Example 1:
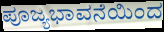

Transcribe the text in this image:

ಪೂಜ್ಯಭಾವನೆಯಿಂದ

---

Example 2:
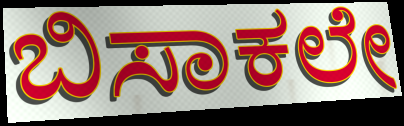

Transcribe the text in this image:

ಬಿಸಾಕಲೇ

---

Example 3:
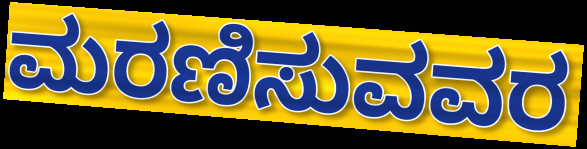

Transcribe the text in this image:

ಮರಣಿಸುವವರ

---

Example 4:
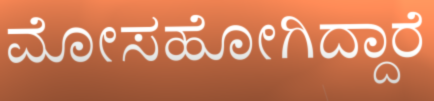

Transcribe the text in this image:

ಮೋಸಹೋಗಿದ್ದಾರೆ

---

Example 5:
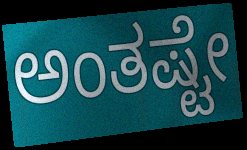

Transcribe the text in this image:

ಅಂತಷ್ಟೇ